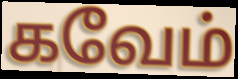
கவேம்